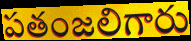
పతంజలిగారు